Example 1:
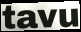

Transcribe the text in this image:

tavu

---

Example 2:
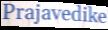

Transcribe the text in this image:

Prajavedike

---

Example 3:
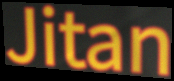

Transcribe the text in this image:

Jitan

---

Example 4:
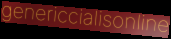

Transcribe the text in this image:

genericcialisonline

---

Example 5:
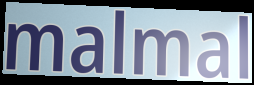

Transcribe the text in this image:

malmal